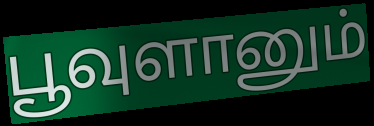
பூவுளானும்